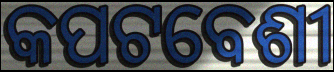
କପଟବେଶୀ